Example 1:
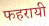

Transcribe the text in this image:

फहरायी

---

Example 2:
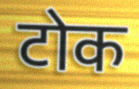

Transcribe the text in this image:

टोक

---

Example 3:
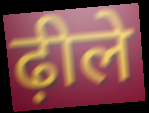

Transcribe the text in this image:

ढ़ीले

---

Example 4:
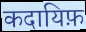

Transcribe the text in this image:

कदायिफ़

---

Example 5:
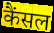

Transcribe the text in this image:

कैंसल